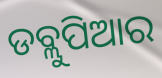
ଡବ୍ଲୁପିଆର